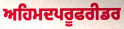
ਅਹਿਮਦਪਰੂਫਰੀਡਰ